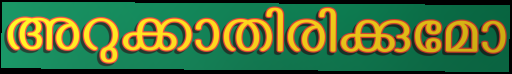
അറുക്കാതിരിക്കുമോ